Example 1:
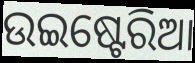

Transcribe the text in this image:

ଉଇଷ୍ଟେରିଆ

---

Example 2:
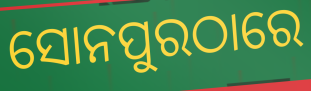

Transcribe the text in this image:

ସୋନପୁରଠାରେ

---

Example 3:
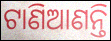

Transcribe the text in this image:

ଟାଣିଆଣନ୍ତି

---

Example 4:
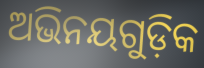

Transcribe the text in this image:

ଅଭିନୟଗୁଡ଼ିକ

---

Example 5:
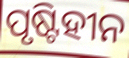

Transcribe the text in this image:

ପୃଷ୍ଟିହୀନ